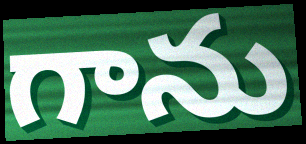
గాను